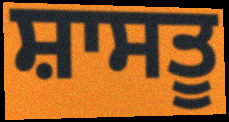
ਸ਼ਾਸਤੂ